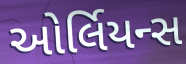
ઓર્લિયન્સ